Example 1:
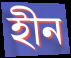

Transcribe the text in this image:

হীন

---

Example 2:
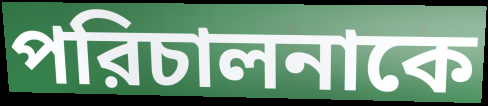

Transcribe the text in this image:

পরিচালনাকে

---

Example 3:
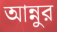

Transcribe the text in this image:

আন্নুর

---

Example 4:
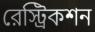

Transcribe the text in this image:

রেস্ট্রিকশন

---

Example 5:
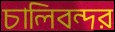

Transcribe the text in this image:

চালিবন্দর